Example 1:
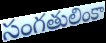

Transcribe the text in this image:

సంగతులింకా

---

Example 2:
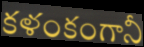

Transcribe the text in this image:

కళంకంగానీ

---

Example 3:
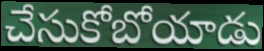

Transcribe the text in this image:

చేసుకోబోయాడు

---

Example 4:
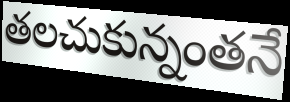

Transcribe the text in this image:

తలచుకున్నంతనే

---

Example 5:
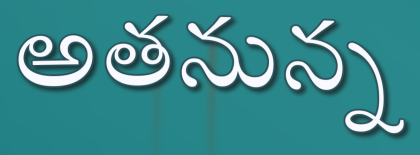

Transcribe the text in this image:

అతనున్న